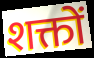
शक्तों